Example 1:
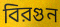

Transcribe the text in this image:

বিরগুন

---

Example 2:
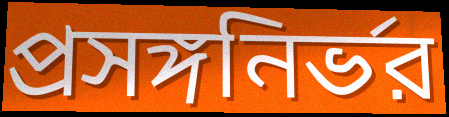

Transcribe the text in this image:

প্রসঙ্গনির্ভর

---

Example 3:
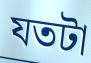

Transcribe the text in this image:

যতটা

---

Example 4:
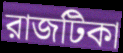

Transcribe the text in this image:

রাজটিকা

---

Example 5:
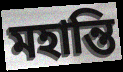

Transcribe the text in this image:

মহান্তি